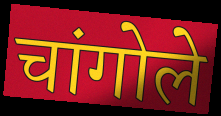
चांगोले